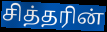
சித்தரின்